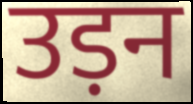
उड़न